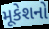
મૂકેશનો